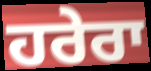
ਹਰੇਰਾ